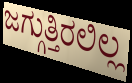
ಜಗ್ಗುತ್ತಿರಲಿಲ್ಲ